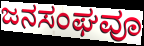
ಜನಸಂಘವೂ